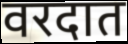
वरदात